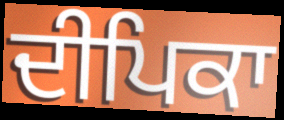
ਦੀਪਿਕਾ